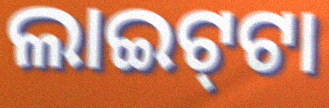
ଲାଇଟ୍‍ଟା